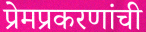
प्रेमप्रकरणांची